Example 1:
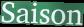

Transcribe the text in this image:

Saison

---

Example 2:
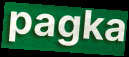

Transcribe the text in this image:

pagka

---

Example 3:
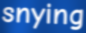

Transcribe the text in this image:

snying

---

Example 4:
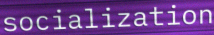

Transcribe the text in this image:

socialization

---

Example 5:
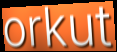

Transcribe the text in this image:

orkut